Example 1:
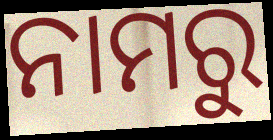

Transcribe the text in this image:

ନାମରୁ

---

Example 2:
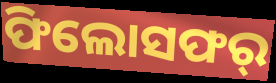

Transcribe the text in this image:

ଫିଲୋସଫର୍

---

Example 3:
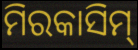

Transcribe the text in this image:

ମିରକାସିମ୍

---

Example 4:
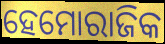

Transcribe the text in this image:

ହେମୋରାଜିକ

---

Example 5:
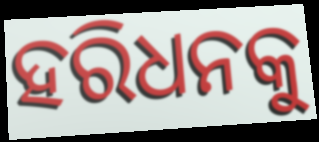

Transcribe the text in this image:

ହରିଧନକୁ